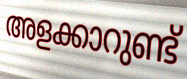
അളക്കാറുണ്ട്